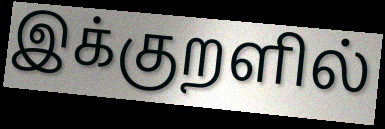
இக்குறளில்